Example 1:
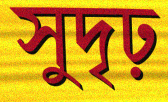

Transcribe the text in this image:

সুদৃঢ়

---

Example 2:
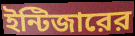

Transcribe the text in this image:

ইন্টিজারের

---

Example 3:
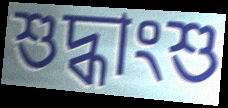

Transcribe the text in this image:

শুদ্ধাংশু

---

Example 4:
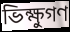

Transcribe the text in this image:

ভিক্ষুগণ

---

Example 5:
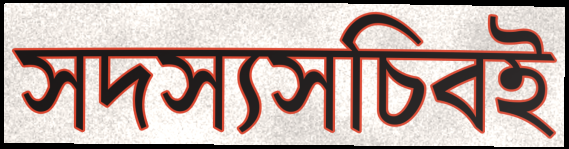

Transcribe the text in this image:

সদস্যসচিবই